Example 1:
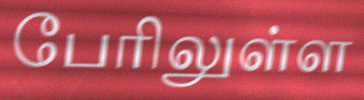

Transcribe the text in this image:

பேரிலுள்ள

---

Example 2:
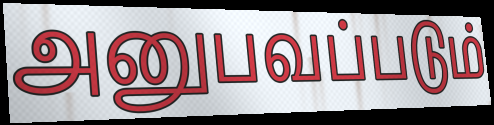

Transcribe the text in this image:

அனுபவப்படும்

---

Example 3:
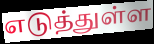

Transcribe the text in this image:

எடுத்துள்ள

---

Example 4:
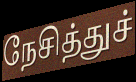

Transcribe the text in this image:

நேசித்துச்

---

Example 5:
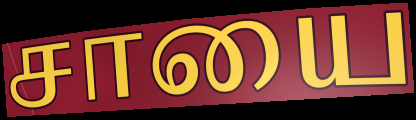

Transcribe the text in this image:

சாயை